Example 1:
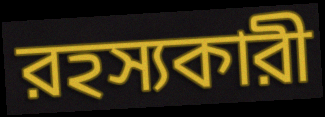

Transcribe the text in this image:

রহস্যকারী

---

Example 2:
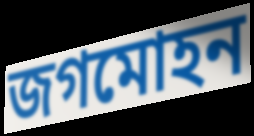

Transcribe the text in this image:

জগমোহন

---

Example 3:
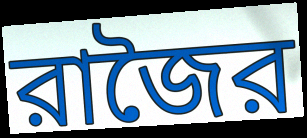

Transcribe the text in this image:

রাজৈর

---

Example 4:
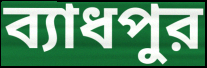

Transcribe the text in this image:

ব্যাধপুর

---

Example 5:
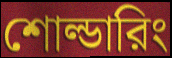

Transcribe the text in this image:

শোল্ডারিং